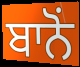
ਬਾਨੋਂ